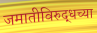
जमातीविरुद्धच्या